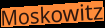
Moskowitz